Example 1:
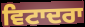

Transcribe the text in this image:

ਵਿਟਾਦਰਾ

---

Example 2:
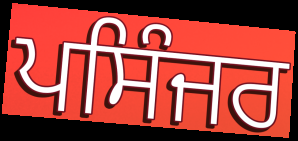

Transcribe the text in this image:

ਪਸਿੰਜਰ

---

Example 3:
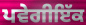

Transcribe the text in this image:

ਪਵੇਗੀਇੱਕ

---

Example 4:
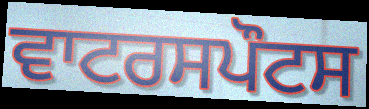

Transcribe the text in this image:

ਵਾਟਰਸਪੌਟਸ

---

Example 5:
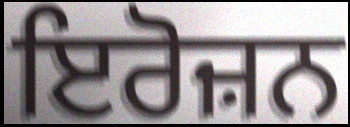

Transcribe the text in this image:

ਇਰੋਜ਼ਨ